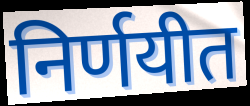
निर्णयीत